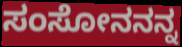
ಸಂಸೋನನನ್ನ